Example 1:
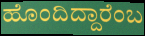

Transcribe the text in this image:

ಹೊಂದಿದ್ದಾರೆಂಬ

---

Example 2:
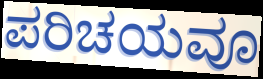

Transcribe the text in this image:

ಪರಿಚಯವೂ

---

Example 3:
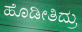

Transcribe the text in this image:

ಹೊಡೀತಿದ್ರು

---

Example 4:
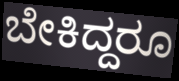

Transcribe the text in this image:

ಬೇಕಿದ್ದರೂ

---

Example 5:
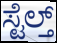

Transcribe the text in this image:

ಸ್ಟೆಲ್ತ್